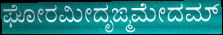
ಘೋರಮೀದೃಙ್ಮಮೇದಮ್